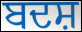
ਬਦਸ਼